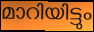
മാറിയിട്ടും